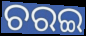
ଚରଇ